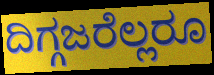
ದಿಗ್ಗಜರೆಲ್ಲರೂ